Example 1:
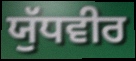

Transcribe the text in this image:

ਯੁੱਧਵੀਰ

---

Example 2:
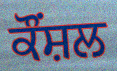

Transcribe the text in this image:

ਕੌਂਸ਼ਲ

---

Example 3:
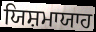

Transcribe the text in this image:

ਯਿਸ਼ਮਾਯਾਹ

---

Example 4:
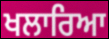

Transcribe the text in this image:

ਖਲਾਰਿਆ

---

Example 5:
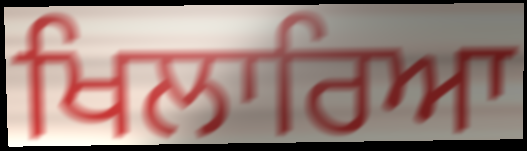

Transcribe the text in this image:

ਖਿਲਾਰਿਆ